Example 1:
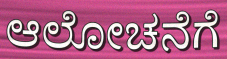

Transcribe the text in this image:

ಆಲೋಚನೆಗೆ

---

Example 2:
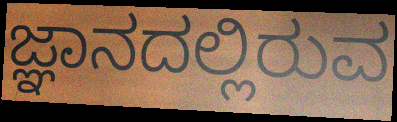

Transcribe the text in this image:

ಜ್ಞಾನದಲ್ಲಿರುವ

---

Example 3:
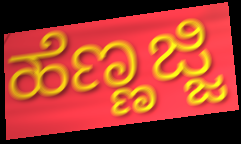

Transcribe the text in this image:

ಹೆಣ್ಣಜ್ಜಿ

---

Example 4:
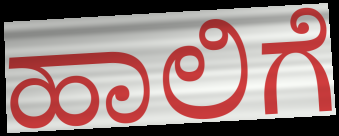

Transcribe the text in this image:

ಹಾಲಿಗೆ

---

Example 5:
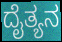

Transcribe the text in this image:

ದೈತ್ಯನ